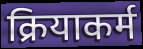
क्रियाकर्म